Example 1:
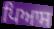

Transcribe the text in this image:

ਪਿਆਸ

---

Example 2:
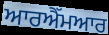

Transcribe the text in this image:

ਆਰਐੱਮਆਰ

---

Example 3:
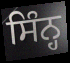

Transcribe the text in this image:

ਸਿੰਨ੍ਹ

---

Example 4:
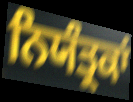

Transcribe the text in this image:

ਨਿਯੰਤ੍ਰਕਾਂ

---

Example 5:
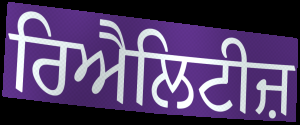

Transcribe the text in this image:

ਰਿਐਲਿਟੀਜ਼